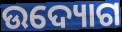
ଉଦ୍ୟୋଗ